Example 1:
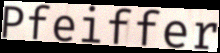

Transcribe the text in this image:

Pfeiffer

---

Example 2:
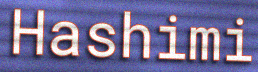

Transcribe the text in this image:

Hashimi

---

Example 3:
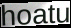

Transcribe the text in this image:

hoatu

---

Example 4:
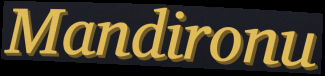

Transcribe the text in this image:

Mandironu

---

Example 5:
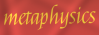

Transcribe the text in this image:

metaphysics